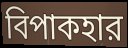
বিপাকহার